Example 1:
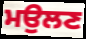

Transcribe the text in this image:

ਮਉਲਣ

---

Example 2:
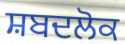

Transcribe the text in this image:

ਸ਼ਬਦਲੋਕ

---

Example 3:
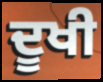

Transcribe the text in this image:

ਦੂਖੀ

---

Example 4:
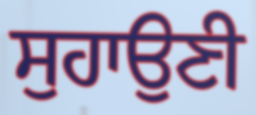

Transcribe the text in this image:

ਸੁਹਾਉਣੀ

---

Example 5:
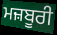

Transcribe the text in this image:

ਮਜ਼ਬੂਰੀ